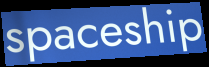
spaceship